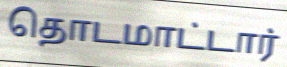
தொடமாட்டார்